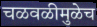
चळवळीमुळेच